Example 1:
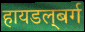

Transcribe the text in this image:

हायडल्‌बर्ग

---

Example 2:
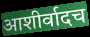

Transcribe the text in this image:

आशीर्वादच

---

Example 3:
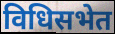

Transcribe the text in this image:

विधिसभेत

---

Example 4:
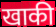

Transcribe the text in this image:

खाकी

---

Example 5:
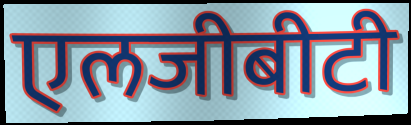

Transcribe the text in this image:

एलजीबीटी